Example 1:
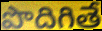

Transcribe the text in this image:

పొదిగితే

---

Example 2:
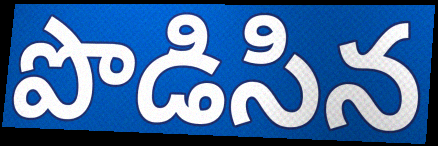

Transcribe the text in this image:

పొడిసిన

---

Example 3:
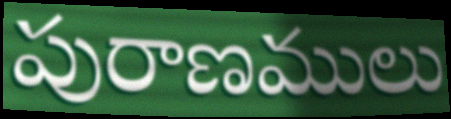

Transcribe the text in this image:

పురాణములు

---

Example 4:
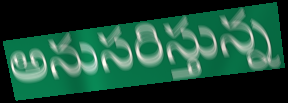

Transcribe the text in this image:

అనుసరిస్తున్న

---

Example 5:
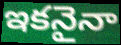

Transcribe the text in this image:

ఇకనైనా